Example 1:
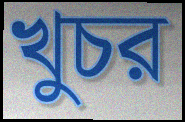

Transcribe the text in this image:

খুচর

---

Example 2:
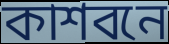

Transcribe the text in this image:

কাশবনে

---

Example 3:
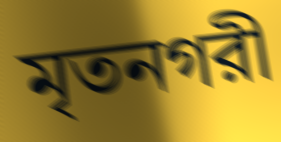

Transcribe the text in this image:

মৃতনগরী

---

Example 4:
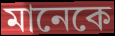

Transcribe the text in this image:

মানেকে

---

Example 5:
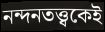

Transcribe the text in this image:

নন্দনতত্ত্বকেই